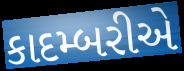
કાદમ્બરીએ